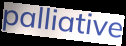
palliative